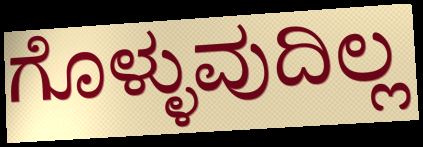
ಗೊಳ್ಳುವುದಿಲ್ಲ